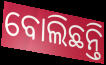
ବୋଲିଛନ୍ତି